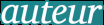
auteur